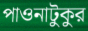
পাওনাটুকুর